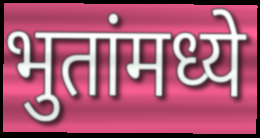
भुतांमध्ये